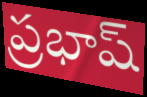
ప్రభాష్